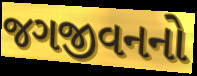
જગજીવનનો